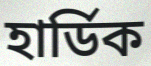
হাৰ্ডিক